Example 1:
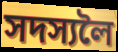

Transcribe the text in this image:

সদস্যলৈ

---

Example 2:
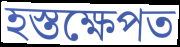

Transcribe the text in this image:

হস্তক্ষেপত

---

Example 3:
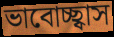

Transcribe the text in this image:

ভাবোচ্ছ্বাস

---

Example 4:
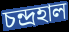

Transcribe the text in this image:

চন্দ্ৰহাল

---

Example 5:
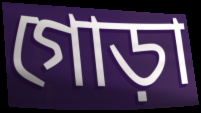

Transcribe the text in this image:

গোড়া